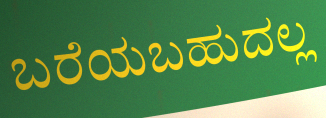
ಬರೆಯಬಹುದಲ್ಲ